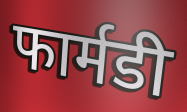
फार्मडी